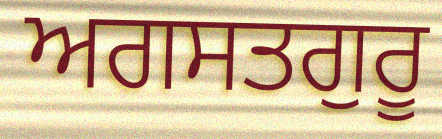
ਅਗਸਤਗੁਰੂ